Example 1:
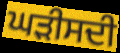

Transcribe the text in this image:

ਘੜੀਸਦੀ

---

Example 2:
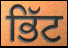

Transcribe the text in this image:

ਭਿੱਟ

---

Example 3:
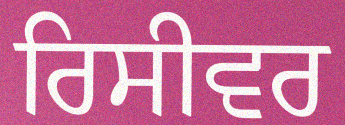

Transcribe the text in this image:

ਰਿਸੀਵਰ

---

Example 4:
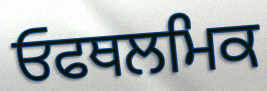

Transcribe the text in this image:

ਓਫਥਲਮਿਕ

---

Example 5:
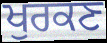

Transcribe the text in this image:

ਖੁਰਕਣ